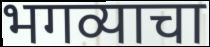
भगव्याचा